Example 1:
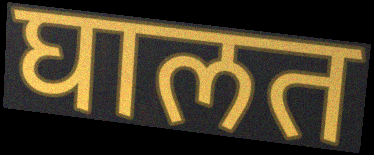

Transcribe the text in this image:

घालत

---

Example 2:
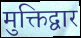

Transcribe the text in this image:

मुक्तिद्वार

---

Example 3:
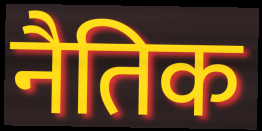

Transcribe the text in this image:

नैतिक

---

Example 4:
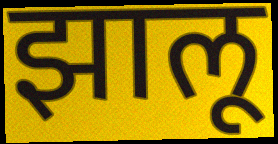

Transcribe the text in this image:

झालू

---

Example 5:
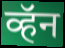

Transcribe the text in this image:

व्हॅन